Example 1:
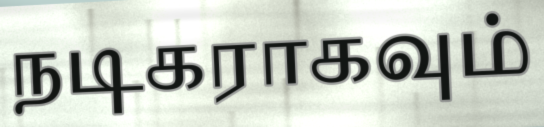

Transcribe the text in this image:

நடிகராகவும்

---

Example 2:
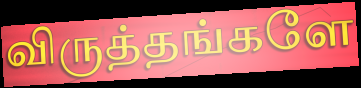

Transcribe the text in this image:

விருத்தங்களே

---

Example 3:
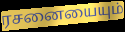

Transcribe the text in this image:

ரசனையையும்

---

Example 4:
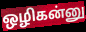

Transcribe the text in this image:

ஒழிகன்னு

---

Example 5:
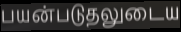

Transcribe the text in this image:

பயன்படுதலுடைய